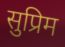
सुप्रिम